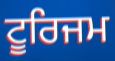
ਟੂਰਿਜਮ